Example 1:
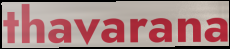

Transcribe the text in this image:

thavarana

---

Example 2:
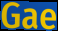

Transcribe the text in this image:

Gae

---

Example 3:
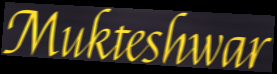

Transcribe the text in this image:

Mukteshwar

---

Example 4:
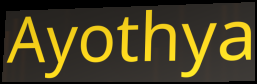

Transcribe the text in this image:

Ayothya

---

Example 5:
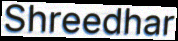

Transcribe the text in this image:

Shreedhar